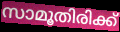
സാമൂതിരിക്ക്